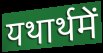
यथार्थमें